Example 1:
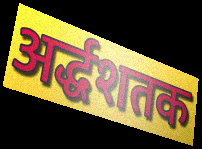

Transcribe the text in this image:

अर्द्धशतक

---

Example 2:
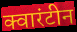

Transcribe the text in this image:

क्वारंटीन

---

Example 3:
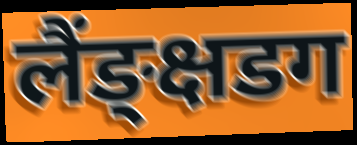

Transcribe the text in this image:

लैंङ्क्षडग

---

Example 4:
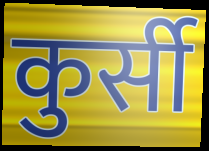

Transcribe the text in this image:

कुर्सी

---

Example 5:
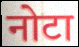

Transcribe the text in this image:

नोटा